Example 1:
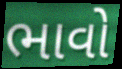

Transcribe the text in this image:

ભાવો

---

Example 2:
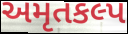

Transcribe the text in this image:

અમૃતકલ્પ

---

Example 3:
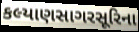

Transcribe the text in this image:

કલ્યાણસાગરસૂરિના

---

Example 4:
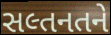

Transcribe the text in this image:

સલ્તનતને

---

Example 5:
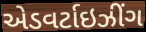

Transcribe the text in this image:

એડવર્ટાઇઝીંગ